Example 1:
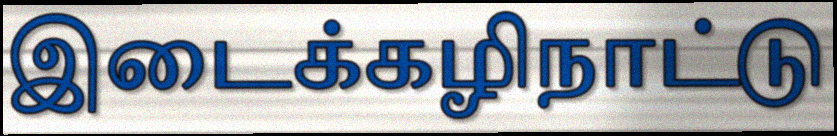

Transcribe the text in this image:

இடைக்கழிநாட்டு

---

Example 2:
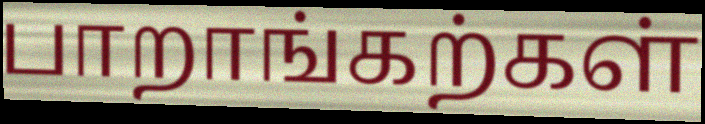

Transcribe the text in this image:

பாறாங்கற்கள்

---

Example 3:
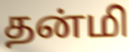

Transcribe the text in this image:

தன்மி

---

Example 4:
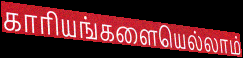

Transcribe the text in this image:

காரியங்களையெல்லாம்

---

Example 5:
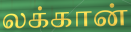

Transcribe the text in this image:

லக்கான்